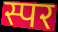
स्पर